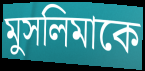
মুসলিমাকে